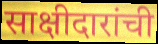
साक्षीदारांची